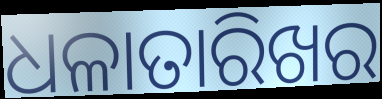
ଧଳାତାରିଖର